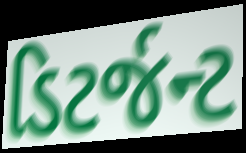
ડિટર્જન્ટ